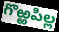
గొఱ్ఱపిల్ల